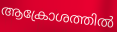
ആക്രോശത്തിൽ